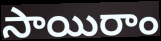
సాయిరాం